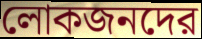
লোকজনদের